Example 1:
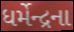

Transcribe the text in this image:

ધર્મેન્દ્રના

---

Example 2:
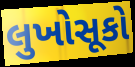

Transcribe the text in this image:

લુખોસૂકો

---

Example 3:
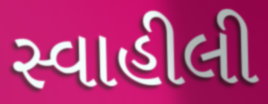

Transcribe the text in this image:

સ્વાહીલી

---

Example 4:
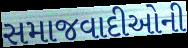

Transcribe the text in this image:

સમાજવાદીઓની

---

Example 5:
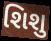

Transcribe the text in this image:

શિશુ